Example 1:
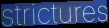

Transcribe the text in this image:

strictures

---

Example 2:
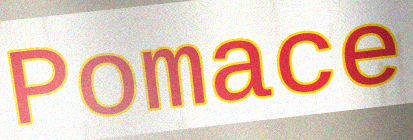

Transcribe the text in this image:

Pomace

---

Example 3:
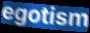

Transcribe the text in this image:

egotism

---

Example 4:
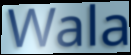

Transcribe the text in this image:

Wala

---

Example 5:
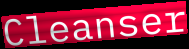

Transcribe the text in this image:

Cleanser